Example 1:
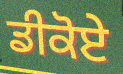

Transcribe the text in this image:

ਡੀਕੋਏ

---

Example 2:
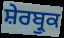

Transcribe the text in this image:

ਸ਼ੇਰਬ੍ਰੁਕ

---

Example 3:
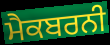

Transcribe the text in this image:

ਮੈਕਬਰਨੀ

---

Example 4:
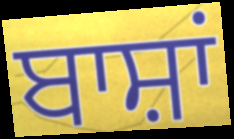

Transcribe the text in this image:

ਬਾਸ਼ਾਂ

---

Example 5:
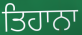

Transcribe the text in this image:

ਤਿਹਾਨਾ